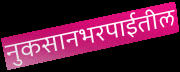
नुकसानभरपाईतील